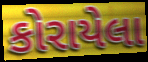
કોરાયેલા